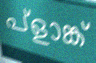
പ്ളാങ്ക്